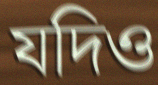
যদিও